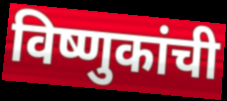
विष्णुकांची